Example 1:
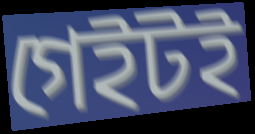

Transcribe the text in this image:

গেইটই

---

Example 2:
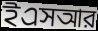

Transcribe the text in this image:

ইএসআর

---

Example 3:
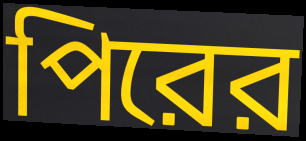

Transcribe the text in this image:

পিরের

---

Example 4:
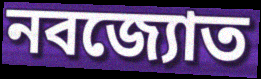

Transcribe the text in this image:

নবজ্যোত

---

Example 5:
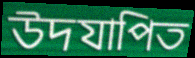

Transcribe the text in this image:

উদযাপিত